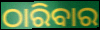
ଠାରିବାର